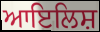
ਆਇਲਿਸ਼